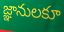
జ్ఞానులకూ